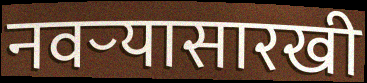
नवऱ्यासारखी